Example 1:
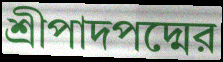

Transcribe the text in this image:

শ্রীপাদপদ্মের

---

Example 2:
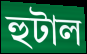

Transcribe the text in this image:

হুটাল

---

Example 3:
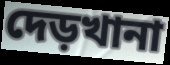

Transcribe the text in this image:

দেড়খানা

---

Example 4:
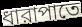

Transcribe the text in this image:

ধারাপাতে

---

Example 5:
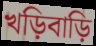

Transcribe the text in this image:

খড়িবাড়ি